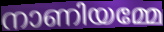
നാണിയമ്മേ